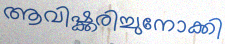
ആവിഷ്ക്കരിച്ചുനോക്കി